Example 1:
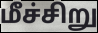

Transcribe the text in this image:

மீச்சிறு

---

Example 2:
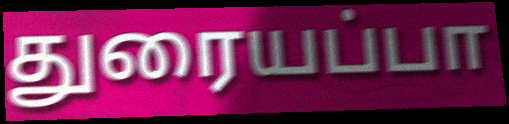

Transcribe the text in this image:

துரையப்பா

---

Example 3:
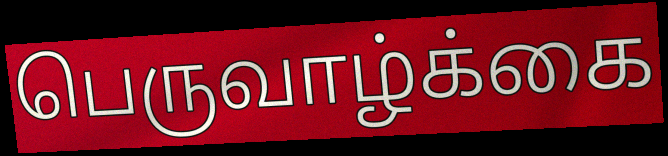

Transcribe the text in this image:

பெருவாழ்க்கை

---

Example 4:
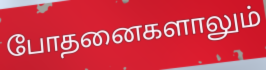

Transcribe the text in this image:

போதனைகளாலும்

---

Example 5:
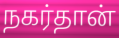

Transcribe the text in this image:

நகர்தான்